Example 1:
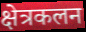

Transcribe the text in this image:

क्षेत्रकलन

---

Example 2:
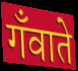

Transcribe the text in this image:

गँवाते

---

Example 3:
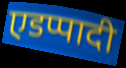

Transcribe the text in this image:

एडप्पादी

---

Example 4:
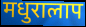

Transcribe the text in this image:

मधुरालाप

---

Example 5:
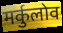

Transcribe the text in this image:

मर्कुलोव